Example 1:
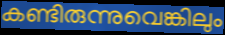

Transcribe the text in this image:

കണ്ടിരുന്നുവെങ്കിലും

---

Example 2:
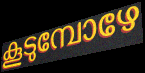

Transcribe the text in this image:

കൂടുമ്പോഴേ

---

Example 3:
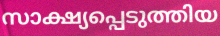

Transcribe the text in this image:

സാക്ഷ്യപ്പെടുത്തിയ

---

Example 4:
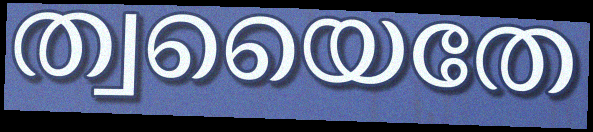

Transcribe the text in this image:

ത്വയൈതേ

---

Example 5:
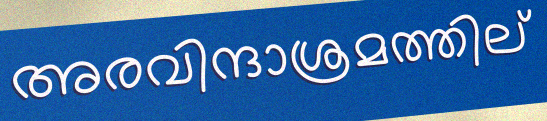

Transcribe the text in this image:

അരവിന്ദാശ്രമത്തില്